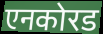
एनकोरड